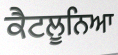
ਕੈਟਲੂਨਿਆ